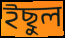
ইছুল